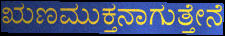
ಋಣಮುಕ್ತನಾಗುತ್ತೇನೆ